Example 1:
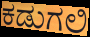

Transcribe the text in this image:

ಕಡುಗಲಿ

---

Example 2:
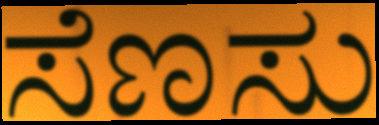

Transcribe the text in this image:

ಸೆಣಸು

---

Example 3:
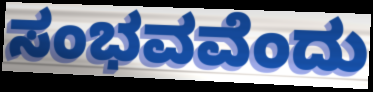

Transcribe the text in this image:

ಸಂಭವವೆಂದು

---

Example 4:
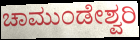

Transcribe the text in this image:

ಚಾಮುಂಡೇಶ್ವರಿ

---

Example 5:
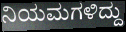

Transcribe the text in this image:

ನಿಯಮಗಳಿದ್ದು